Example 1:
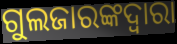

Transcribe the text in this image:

ଗୁଲଜାରଙ୍କଦ୍ୱାରା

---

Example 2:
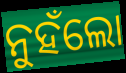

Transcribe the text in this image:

ନୁହଁଲୋ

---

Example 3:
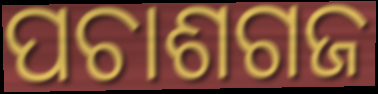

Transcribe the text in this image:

ପଚାଶଗଜ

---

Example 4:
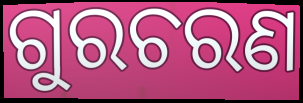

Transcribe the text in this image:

ଗୁରଚରଣ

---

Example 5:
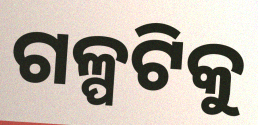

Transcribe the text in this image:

ଗଳ୍ପଟିକୁ